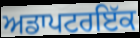
ਅਡਾਪਟਰਇੱਕ